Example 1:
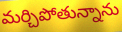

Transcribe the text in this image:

మర్చిపోతున్నాను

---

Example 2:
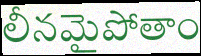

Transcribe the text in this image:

లీనమైపోతాం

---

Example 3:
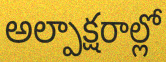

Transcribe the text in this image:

అల్పాక్షరాల్లో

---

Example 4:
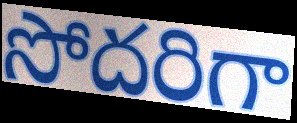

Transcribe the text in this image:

సోదరిగా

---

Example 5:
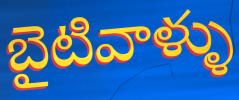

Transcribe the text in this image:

బైటివాళ్ళు